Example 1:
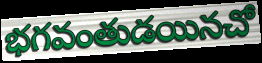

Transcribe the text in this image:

భగవంతుడయినచో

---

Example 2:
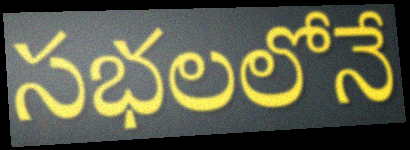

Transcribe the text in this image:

సభలలోనే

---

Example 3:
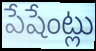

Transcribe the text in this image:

పేషేంట్లు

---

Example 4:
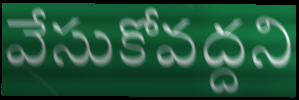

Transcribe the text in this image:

వేసుకోవద్దని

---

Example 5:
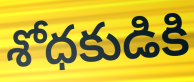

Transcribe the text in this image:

శోధకుడికి